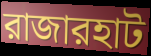
রাজারহাট